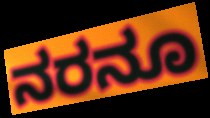
ನರನೂ